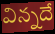
విన్నదే